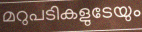
മറുപടികളുടേയും